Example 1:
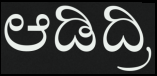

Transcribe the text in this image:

ಆಡಿದ್ರಿ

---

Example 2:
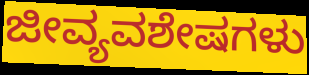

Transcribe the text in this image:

ಜೀವ್ಯವಶೇಷಗಳು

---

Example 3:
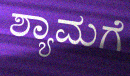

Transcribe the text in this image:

ಶ್ಯಾಮಗೆ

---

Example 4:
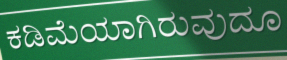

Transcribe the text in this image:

ಕಡಿಮೆಯಾಗಿರುವುದೂ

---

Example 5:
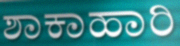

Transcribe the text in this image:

ಶಾಕಾಹಾರಿ